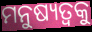
ମନୁଷ୍ୟତ୍ୱକୁ